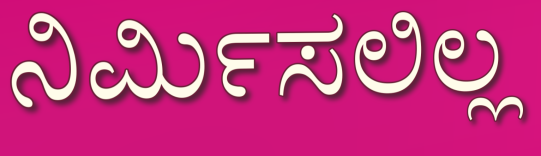
ನಿರ್ಮಿಸಲಿಲ್ಲ